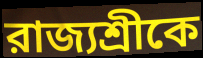
রাজ্যশ্রীকে